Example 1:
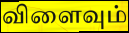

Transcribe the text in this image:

விளைவும்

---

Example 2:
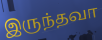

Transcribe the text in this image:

இருந்தவா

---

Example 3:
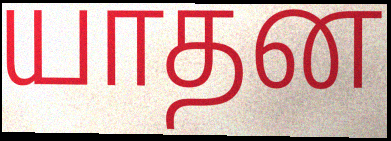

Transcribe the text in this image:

யாதன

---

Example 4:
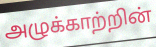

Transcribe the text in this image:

அழுக்காற்றின்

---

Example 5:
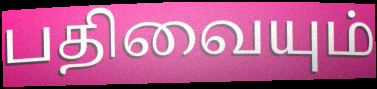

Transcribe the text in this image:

பதிவையும்